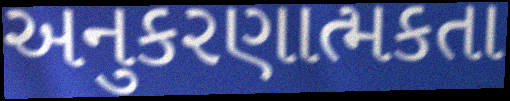
અનુકરણાત્મકતા